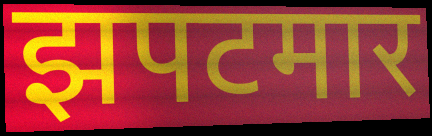
झपटमार